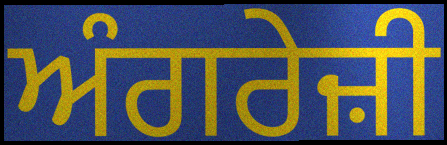
ਅੰਗਰੇਜ਼ੀ